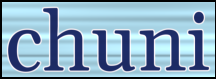
chuni